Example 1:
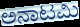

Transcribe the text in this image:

ಅನಾಟಮಿ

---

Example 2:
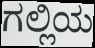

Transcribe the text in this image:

ಗಲ್ಲಿಯ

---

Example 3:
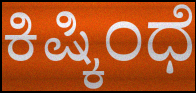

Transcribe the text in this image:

ಕಿಷ್ಕಿಂಧೆ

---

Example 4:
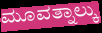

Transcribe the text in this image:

ಮೂವತ್ನಾಲ್ಕು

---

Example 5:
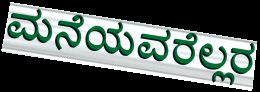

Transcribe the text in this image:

ಮನೆಯವರೆಲ್ಲರ